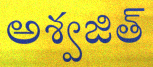
అశ్వజిత్